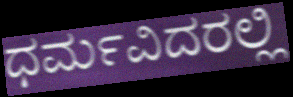
ಧರ್ಮವಿದರಲ್ಲಿ